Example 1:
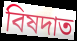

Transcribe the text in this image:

বিষদাত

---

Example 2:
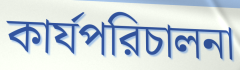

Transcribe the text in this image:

কার্যপরিচালনা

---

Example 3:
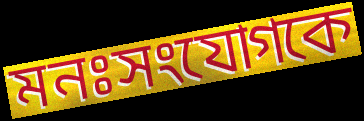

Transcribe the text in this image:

মনঃসংযোগকে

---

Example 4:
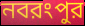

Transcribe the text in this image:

নবরংপুর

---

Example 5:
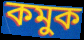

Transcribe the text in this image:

কমুক